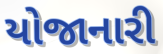
યોજાનારી